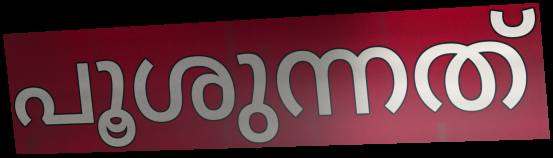
പൂശുന്നത്